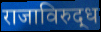
राजाविरुद्ध